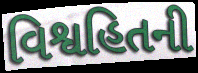
વિશ્વહિતની